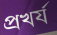
প্রখর্য